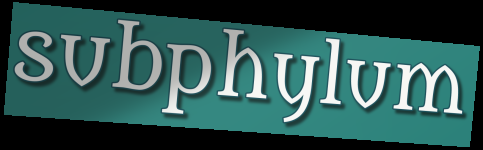
subphylum